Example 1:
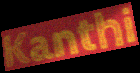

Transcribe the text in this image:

Kanthi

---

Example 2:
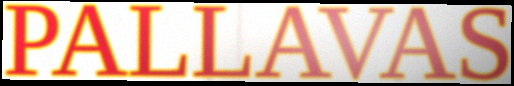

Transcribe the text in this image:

PALLAVAS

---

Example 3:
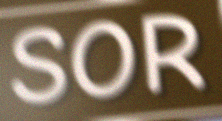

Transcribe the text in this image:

SOR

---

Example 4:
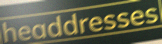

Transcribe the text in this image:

headdresses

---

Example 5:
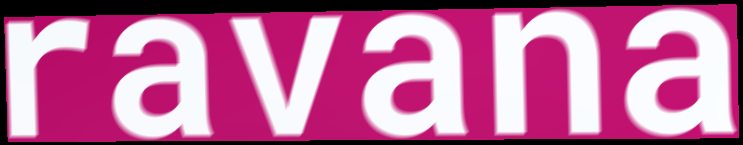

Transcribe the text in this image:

ravana